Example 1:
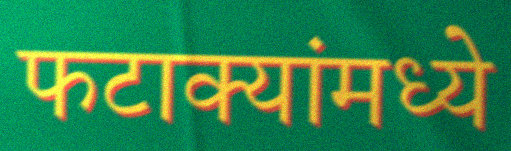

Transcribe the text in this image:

फटाक्यांमध्ये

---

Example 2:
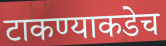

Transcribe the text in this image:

टाकण्याकडेच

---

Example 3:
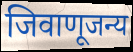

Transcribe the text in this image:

जिवाणूजन्य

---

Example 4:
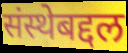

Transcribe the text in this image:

संस्थेबद्दल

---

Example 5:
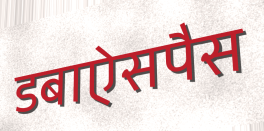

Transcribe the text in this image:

डबाऐसपैस